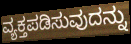
ವ್ಯಕ್ತಪಡಿಸುವುದನ್ನು